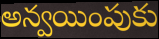
అన్వయింపుకు